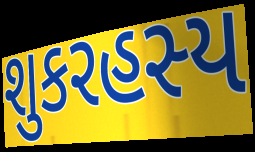
શુકરહસ્ય